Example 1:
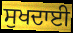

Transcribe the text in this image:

ਸੁਖਦਾਈ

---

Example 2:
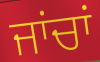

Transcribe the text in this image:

ਜਾਂਚਾਂ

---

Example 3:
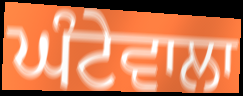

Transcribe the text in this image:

ਘੰਟੇਵਾਲਾ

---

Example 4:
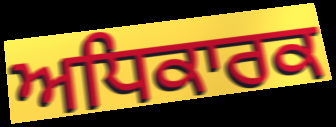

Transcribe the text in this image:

ਅਧਿਕਾਰਕ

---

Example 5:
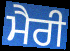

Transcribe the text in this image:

ਮੈਰੀ